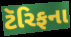
ટૅરિફના